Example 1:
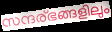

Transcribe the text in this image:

സന്ദര്ഭങ്ങളിലും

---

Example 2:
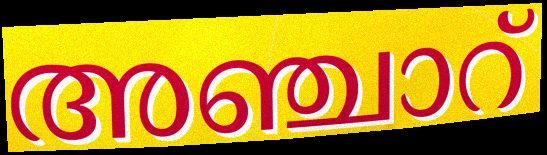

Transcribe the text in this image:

അഞ്ചാറ്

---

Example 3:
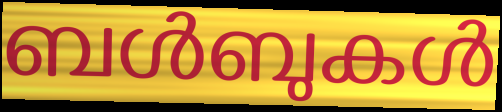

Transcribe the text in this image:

ബൾബുകൾ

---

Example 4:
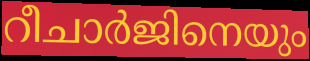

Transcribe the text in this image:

റീചാർജിനെയും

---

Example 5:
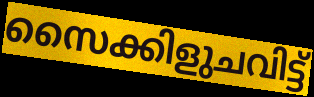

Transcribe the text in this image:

സൈക്കിളുചവിട്ട്